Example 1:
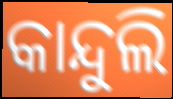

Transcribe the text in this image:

କାନ୍ଦୁଲି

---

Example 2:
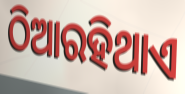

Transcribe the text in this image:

ଠିଆରହିଥାଏ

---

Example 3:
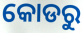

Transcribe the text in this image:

କୋଡରୁ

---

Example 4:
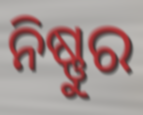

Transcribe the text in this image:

ନିଷ୍ଣୁର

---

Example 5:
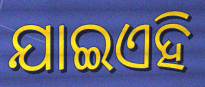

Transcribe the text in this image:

ଯାଇଏହି